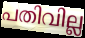
പതിവില്ല